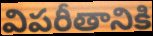
విపరీతానికి